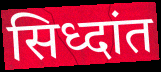
सिध्दांत